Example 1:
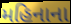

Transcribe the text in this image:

મહિનાના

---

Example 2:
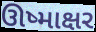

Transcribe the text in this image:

ઊષ્માક્ષર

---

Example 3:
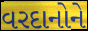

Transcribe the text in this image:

વરદાનોને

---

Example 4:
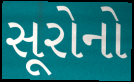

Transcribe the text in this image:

સૂરોનો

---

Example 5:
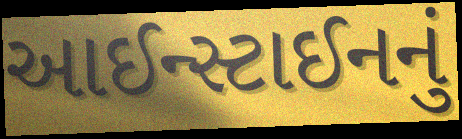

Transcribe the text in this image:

આઈન્સ્ટાઈનનું